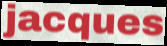
jacques